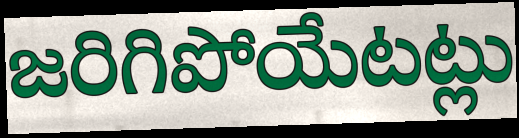
జరిగిపోయేటట్లు